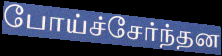
போய்ச்சேர்ந்தன